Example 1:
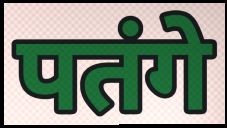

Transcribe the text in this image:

पतंगे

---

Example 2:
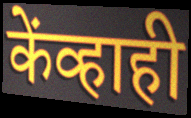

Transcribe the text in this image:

केंव्हाही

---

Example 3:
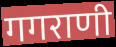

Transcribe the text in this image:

गगराणी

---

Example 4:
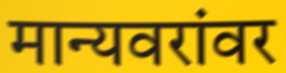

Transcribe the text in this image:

मान्यवरांवर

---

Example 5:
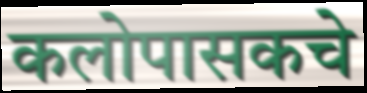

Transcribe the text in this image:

कलोपासकचे